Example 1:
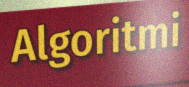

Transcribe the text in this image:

Algoritmi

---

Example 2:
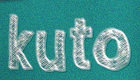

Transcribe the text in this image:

kuto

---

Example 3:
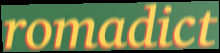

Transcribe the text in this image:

romadict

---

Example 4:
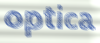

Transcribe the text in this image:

optica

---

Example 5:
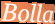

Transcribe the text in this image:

Bolla